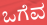
ಒಗೆವ